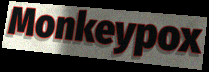
Monkeypox